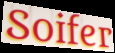
Soifer